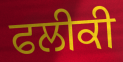
ਫਲੀਕੀ